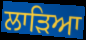
ਲਾੜਿਆ